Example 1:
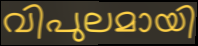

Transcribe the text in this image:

വിപുലമായി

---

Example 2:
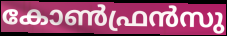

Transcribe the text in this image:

കോൺഫ്രൻസു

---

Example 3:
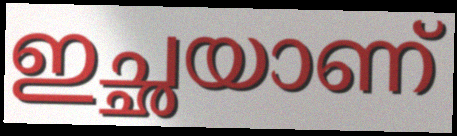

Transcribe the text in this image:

ഇച്ഛയാണ്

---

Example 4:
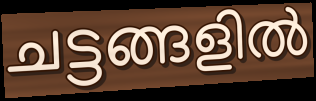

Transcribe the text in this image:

ചട്ടങ്ങളിൽ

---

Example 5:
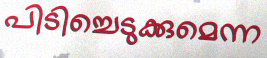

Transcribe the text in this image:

പിടിച്ചെടുക്കുമെന്ന